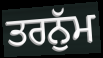
ਤਰਨੁੱਮ